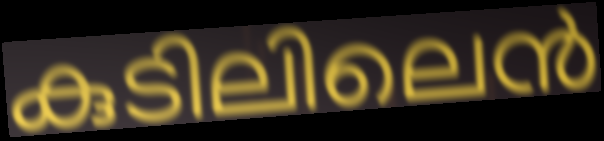
കുടിലിലെൻ